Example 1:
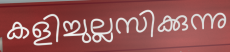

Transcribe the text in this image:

കളിച്ചുല്ലസിക്കുന്നു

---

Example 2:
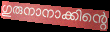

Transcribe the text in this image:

ഗുരുനാനാക്കിന്റെ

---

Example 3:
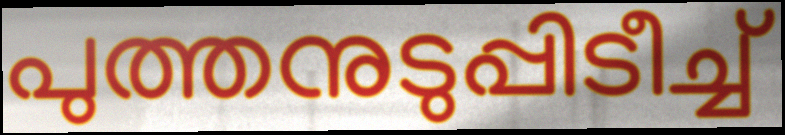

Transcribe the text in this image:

പുത്തനുടുപ്പിടീച്ച്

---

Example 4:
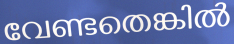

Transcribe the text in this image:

വേണ്ടതെങ്കിൽ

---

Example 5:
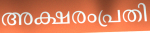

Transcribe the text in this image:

അക്ഷരംപ്രതി